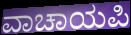
ವಾಚಾಯಪಿ